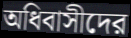
অধিবাসীদের